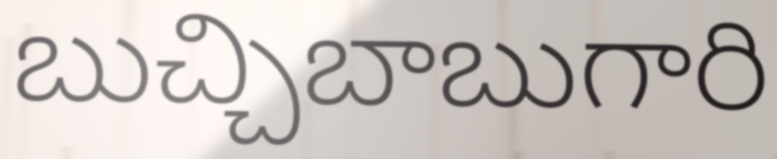
బుచ్చిబాబుగారి